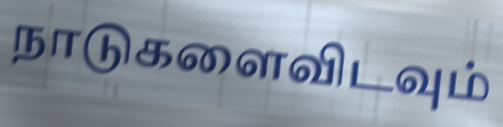
நாடுகளைவிடவும்